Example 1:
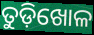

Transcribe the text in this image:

ତୁଡ଼ିଖୋଳ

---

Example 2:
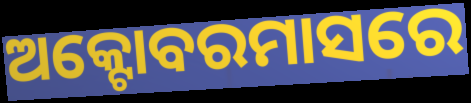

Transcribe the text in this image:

ଅକ୍ଟୋବରମାସରେ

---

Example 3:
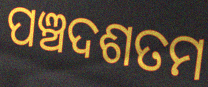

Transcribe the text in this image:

ପଞ୍ଚଦଶତମ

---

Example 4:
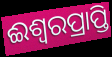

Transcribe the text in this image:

ଈଶ୍ଵରପ୍ରାପ୍ତି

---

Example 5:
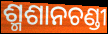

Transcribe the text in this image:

ଶ୍ମଶାନଚଣ୍ଡୀ